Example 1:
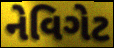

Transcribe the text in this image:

નેવિગેટ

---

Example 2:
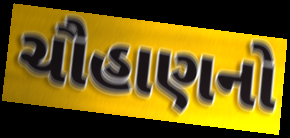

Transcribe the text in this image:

ચૌહાણનો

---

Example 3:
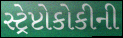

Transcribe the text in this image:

સ્ટ્રેપ્ટોકોકીની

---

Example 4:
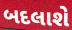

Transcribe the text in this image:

બદલાશે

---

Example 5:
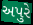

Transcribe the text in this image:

અપુરે